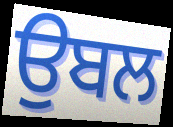
ਉਬਲ